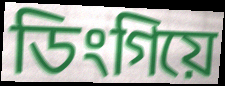
ডিংগিয়ে